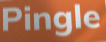
Pingle